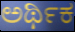
ಅರ್ಥಿಕ